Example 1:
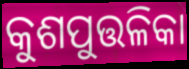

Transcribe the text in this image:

କୁଶପୁତ୍ତଳିକା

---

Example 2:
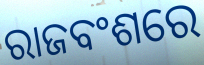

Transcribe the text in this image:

ରାଜବଂଶରେ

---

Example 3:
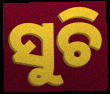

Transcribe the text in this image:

ସୁଚି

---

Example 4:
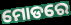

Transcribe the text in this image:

ମୋଡରେ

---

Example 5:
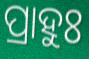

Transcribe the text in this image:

ପ୍ରାହୁଃ